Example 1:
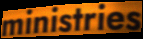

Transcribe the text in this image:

ministries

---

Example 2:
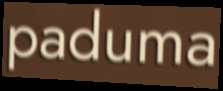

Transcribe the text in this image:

paduma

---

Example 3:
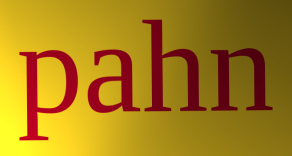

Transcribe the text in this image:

pahn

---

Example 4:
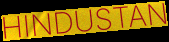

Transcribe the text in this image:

HINDUSTAN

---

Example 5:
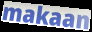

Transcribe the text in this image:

makaan